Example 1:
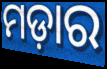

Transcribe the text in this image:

ମଡ଼ାର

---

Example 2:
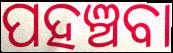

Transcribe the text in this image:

ପହଞ୍ଚବା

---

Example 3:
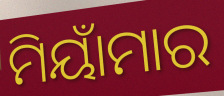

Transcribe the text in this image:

ମିୟାଁମାର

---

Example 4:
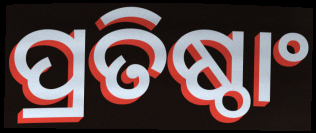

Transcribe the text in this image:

ପ୍ରତିଷ୍ଠାଂ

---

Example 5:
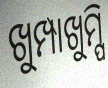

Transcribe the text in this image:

ଖୁମ୍ପାଖୁମ୍ପି